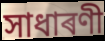
সাধাৰণী